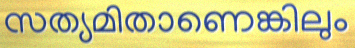
സത്യമിതാണെങ്കിലും